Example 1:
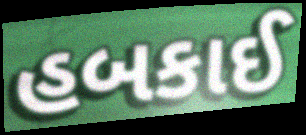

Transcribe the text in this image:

હબકાઈ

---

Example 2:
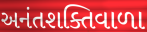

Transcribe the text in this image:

અનંતશક્તિવાળા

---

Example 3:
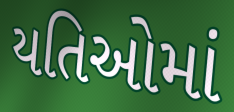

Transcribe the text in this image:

યતિઓમાં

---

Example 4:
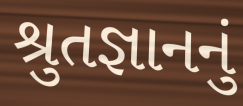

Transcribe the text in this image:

શ્રુતજ્ઞાનનું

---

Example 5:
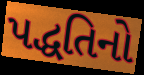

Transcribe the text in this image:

પદ્ધતિનો